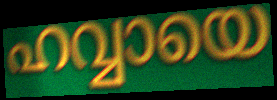
ഹവ്വായെ